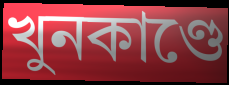
খুনকাণ্ডে